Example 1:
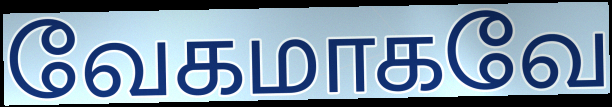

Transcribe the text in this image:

வேகமாகவே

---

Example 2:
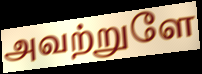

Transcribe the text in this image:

அவற்றுளே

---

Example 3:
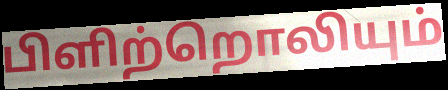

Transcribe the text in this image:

பிளிற்றொலியும்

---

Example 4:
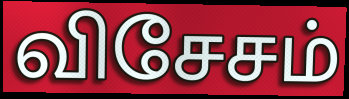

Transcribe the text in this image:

விசேசம்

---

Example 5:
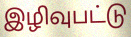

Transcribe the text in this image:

இழிவுபட்டு